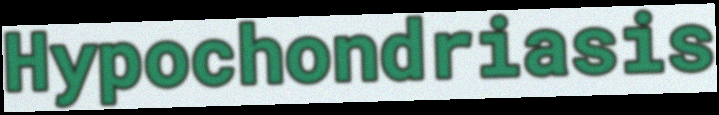
Hypochondriasis